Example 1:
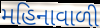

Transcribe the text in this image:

મહિનાવાળી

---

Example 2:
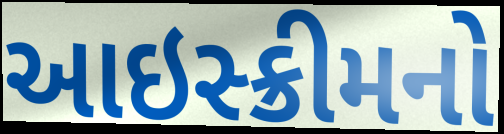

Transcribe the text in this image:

આઇસ્ક્રીમનો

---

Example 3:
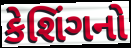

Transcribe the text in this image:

કેશિંગનો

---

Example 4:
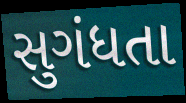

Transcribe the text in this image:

સુગંધતા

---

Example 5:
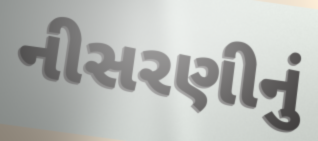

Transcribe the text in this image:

નીસરણીનું